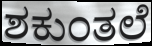
ಶಕುಂತಲೆ